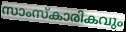
സാംസ്കാരികവും